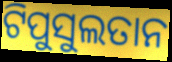
ଟିପୁସୁଲତାନ